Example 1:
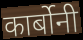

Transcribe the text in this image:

कार्बोनी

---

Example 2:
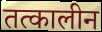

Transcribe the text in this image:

तत्कालीन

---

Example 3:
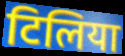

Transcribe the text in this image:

टिलिया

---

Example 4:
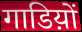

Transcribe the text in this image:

गाडिय़ों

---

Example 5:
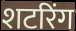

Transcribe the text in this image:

शटरिंग